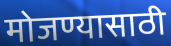
मोजण्यासाठी